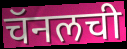
चॅनलची